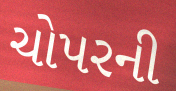
ચોપરની